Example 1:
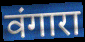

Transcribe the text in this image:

वंगारा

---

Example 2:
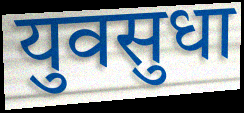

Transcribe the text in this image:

युवसुधा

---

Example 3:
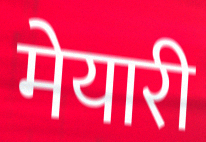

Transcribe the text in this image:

मेयारी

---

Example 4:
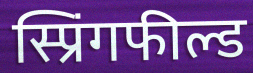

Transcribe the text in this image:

स्प्रिंगफील्ड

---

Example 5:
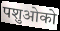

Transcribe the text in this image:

पशुओको